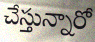
చేస్తున్నారో